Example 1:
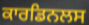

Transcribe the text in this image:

ਕਾਰਡਿਨਲਸ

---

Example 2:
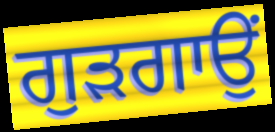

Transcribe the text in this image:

ਗੁੜਗਾਉਂ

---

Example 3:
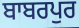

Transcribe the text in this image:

ਬਾਬਰਪੁਰ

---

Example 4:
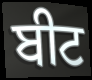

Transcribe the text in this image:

ਬੀਟ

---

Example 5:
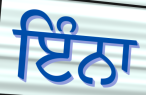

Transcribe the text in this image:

ਇੰਨਾ